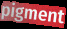
pigment